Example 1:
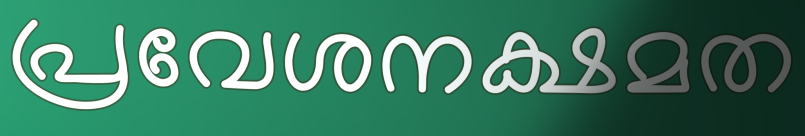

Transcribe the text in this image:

പ്രവേശനക്ഷമത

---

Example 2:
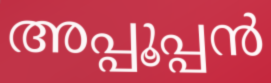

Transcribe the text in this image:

അപ്പൂപ്പൻ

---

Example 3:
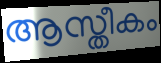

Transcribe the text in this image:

ആസ്തീകം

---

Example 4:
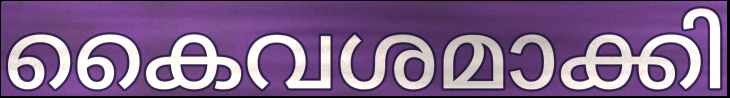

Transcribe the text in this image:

കൈവശമാക്കി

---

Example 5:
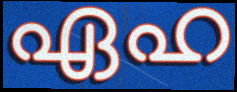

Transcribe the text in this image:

ഏഹ